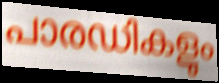
പാരഡികളും